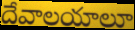
దేవాలయాలూ